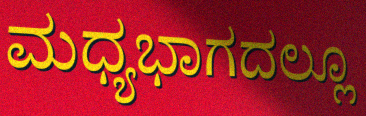
ಮಧ್ಯಭಾಗದಲ್ಲೂ